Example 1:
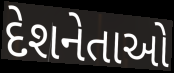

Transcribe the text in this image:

દેશનેતાઓ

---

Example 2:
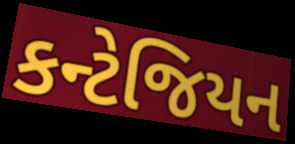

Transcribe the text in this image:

કન્ટેજિયન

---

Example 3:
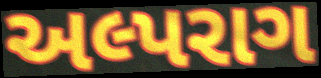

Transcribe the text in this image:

અલ્પરાગ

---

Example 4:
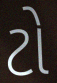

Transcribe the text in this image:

ટો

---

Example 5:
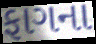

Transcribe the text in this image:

ફાગના